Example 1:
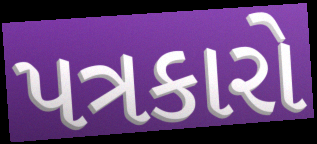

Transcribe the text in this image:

પત્રકારો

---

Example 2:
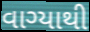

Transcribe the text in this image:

વાગ્યાથી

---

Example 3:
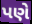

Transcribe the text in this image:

પણે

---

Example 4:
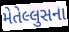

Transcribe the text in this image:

મેતેલ્લુસના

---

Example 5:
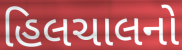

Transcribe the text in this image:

હિલચાલનો